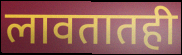
लावतातही